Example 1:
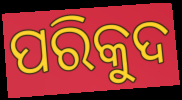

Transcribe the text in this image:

ପରିକୁଦ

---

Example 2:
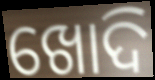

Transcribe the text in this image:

ଖୋଦି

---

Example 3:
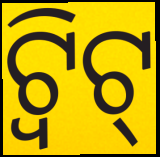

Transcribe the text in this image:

ଟ୍ୱିଟ୍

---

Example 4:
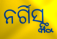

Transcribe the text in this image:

ନର୍ଗିସ୍ଙ୍କୁ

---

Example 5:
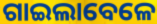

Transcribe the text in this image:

ଗାଇଲାବେଳେ